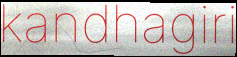
kandhagiri